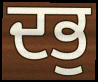
ਦਭੁ